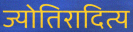
ज्योतिरादित्य